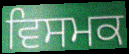
ਵਿਸਮਕ